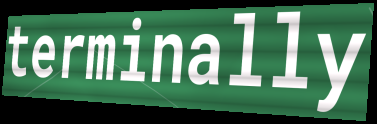
terminally